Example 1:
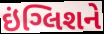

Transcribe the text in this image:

ઇંગ્લિશને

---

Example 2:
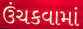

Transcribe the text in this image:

ઉંચકવામાં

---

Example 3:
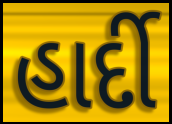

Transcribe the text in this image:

હાર્દી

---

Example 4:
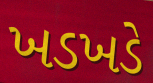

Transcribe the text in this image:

ખડખડે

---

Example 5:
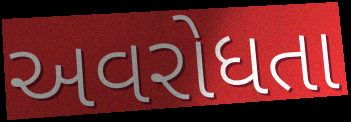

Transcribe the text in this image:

અવરોધતા